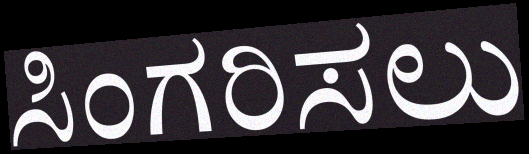
ಸಿಂಗರಿಸಲು